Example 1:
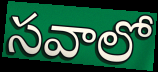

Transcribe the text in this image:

సవాలో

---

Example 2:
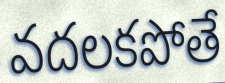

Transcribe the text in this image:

వదలకపోతే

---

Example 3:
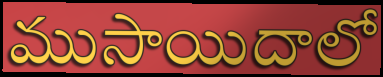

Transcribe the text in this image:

ముసాయిదాలో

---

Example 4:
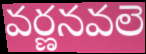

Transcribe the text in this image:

వర్ణనవలె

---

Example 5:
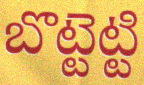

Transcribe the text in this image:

బొట్టెట్టి